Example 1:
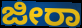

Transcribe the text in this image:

ಜೀರಾ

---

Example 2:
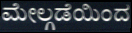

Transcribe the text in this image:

ಮೇಲ್ಗಡೆಯಿಂದ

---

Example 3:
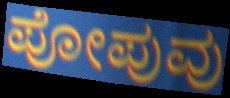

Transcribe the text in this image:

ಪೋಪುವು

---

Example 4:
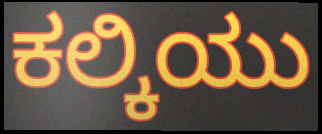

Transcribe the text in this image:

ಕಲ್ಕಿಯು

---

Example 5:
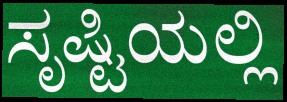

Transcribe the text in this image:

ಸೃಷ್ಟಿಯಲ್ಲಿ